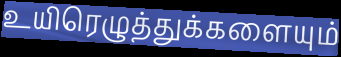
உயிரெழுத்துக்களையும்